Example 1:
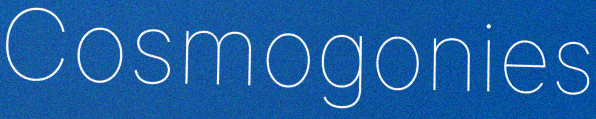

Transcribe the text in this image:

Cosmogonies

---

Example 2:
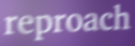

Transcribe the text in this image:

reproach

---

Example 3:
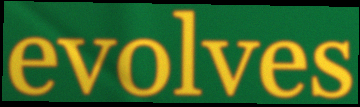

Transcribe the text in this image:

evolves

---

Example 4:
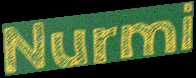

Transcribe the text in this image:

Nurmi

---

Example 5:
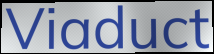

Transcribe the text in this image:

Viaduct